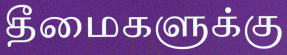
தீமைகளுக்கு